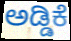
ಅಡ್ಡಿಕೆ